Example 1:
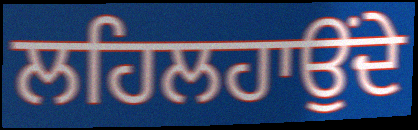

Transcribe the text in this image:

ਲਹਿਲਹਾਉਂਦੇ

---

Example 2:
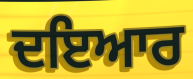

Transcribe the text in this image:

ਦਇਆਰ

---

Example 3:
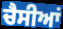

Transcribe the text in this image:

ਚੈਸੀਆਂ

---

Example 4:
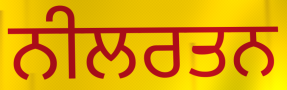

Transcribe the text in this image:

ਨੀਲਰਤਨ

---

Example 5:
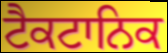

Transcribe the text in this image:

ਟੈਕਟਾਨਿਕ